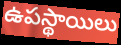
ఉపస్థాయిలు